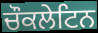
ਚੌਕਲੇਟਿਨ